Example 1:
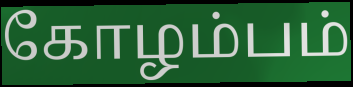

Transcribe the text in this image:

கோழம்பம்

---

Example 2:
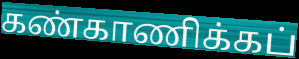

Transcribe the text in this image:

கண்காணிக்கப்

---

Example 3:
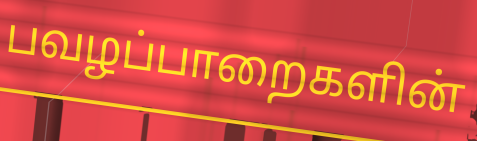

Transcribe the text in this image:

பவழப்பாறைகளின்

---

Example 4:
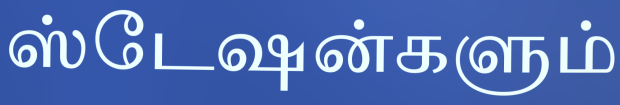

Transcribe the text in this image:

ஸ்டேஷன்களும்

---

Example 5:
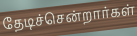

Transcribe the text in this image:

தேடிச்சென்றார்கள்